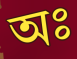
অঃ